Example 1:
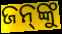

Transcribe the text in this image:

ଜନ୍‍ଙ୍କୁ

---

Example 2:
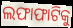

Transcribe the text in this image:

ଲଫାଫାଟିକୁ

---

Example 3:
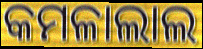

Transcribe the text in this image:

କମଳାଲାଲ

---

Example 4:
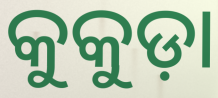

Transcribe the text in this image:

କୁକୁଡ଼ା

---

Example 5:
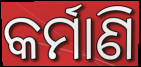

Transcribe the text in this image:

କର୍ମାଣି